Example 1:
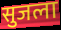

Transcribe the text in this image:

सुजला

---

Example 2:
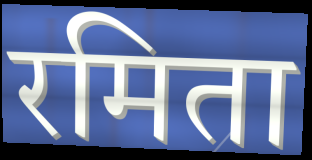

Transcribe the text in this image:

रमिता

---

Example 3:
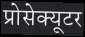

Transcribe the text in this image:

प्रोसेक्यूटर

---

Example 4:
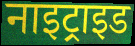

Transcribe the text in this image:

नाइट्राइड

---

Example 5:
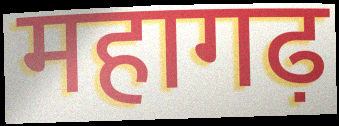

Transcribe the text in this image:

महागढ़